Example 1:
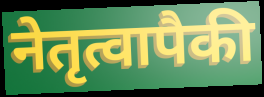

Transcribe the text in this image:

नेतृत्वापैकी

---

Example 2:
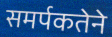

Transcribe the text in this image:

समर्पकतेने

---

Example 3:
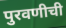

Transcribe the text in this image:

पुरवणीची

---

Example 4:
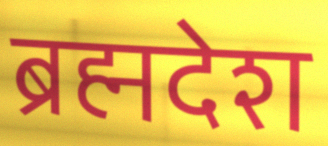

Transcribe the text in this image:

ब्रह्मदेश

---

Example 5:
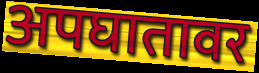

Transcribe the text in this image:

अपघातावर